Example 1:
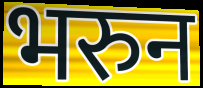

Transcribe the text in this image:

भरुन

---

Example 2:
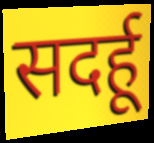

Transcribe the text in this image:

सदर्हू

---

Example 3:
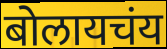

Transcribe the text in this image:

बोलायचंय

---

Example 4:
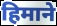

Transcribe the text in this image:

हिमाने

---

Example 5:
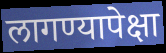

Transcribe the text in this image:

लागण्यापेक्षा